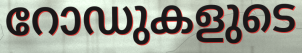
റോഡുകളുടെ